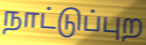
நாட்டுப்புற